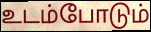
உடம்போடும்